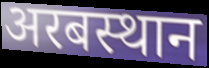
अरबस्थान